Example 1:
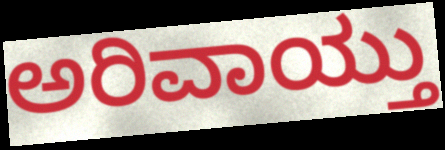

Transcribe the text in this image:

ಅರಿವಾಯ್ತು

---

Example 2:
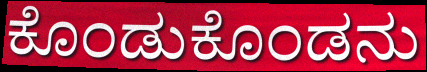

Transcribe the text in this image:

ಕೊಂಡುಕೊಂಡನು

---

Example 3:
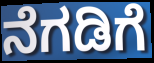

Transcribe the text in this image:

ನೆಗಡಿಗೆ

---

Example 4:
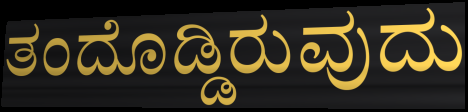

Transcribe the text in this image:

ತಂದೊಡ್ಡಿರುವುದು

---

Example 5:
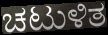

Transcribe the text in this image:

ಚಟುಳಿತ